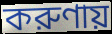
করুণায়